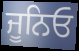
ਜੂਨਿਓ